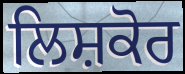
ਲਿਸ਼ਕੋਰ